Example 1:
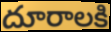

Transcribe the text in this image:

దూరాలకి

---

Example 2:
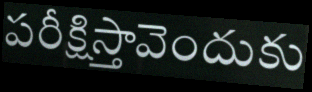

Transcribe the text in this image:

పరీక్షిస్తావెందుకు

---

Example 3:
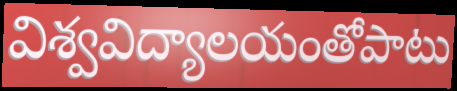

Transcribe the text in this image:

విశ్వవిద్యాలయంతోపాటు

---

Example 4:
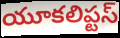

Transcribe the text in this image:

యూకలిప్టస్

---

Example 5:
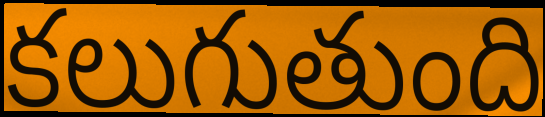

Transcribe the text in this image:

కలుగుతుంది